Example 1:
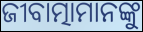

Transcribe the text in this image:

ଜୀବାତ୍ମାମାନଙ୍କୁ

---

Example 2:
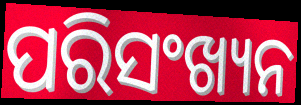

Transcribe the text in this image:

ପରିସଂଖ୍ୟନ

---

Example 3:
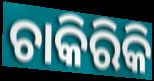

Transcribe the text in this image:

ଚାକିରିକି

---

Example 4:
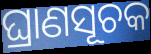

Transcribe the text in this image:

ଘ୍ରାଣସୂଚକ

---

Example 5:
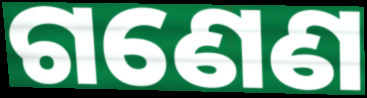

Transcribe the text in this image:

ଗଣେଣ